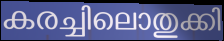
കരച്ചിലൊതുക്കി